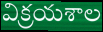
విక్రయశాల